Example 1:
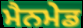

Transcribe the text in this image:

ਮੈਨਮੇਡ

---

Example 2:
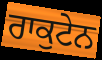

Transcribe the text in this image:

ਰਾਕੁਟੇਨ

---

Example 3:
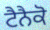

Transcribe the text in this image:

ਟੈਨੈਕੋ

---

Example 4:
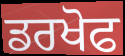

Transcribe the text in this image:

ਡਰਖੋਫ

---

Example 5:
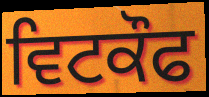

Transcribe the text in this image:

ਵਿਟਕੌਫ